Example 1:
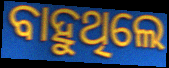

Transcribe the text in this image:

ବାହୁଥିଲେ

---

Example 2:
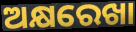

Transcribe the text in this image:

ଅକ୍ଷରେଖା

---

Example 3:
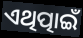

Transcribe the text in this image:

ଏଥିତ୍ପାଇଁ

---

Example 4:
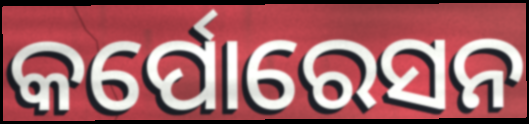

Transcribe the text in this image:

କର୍ପୋରେସନ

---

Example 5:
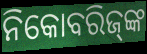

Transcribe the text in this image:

ନିକୋବରିଜ୍‍ଙ୍କ